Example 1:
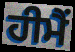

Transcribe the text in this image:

ਹੀਮੈਂ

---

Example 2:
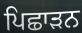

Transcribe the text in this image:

ਪਿਛਾੜਨ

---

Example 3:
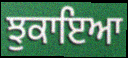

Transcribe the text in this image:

ਝੁਕਾਇਆ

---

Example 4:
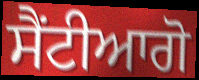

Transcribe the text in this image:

ਸੈਂਟੀਆਗੋ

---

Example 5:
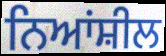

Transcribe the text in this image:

ਨਿਆਂਸ਼ੀਲ